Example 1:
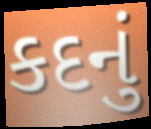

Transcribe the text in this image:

કદનું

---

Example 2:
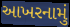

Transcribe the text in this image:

આખરનામું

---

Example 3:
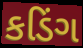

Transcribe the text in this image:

કડિંગ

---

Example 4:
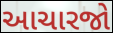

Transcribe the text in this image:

આચારજો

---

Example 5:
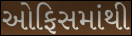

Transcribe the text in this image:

ઓફિસમાંથી